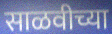
साळवीच्या